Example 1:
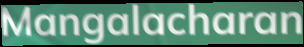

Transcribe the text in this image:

Mangalacharan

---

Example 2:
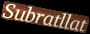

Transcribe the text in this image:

Subratllat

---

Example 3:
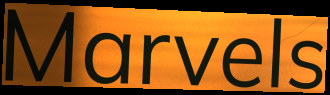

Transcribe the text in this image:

Marvels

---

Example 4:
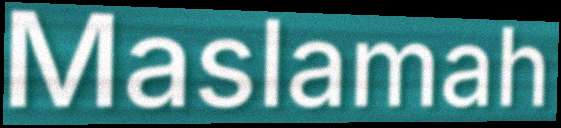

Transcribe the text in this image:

Maslamah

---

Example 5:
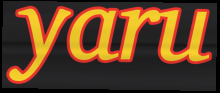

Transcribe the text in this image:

yaru